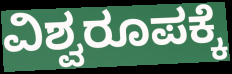
ವಿಶ್ವರೂಪಕ್ಕೆ